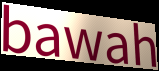
bawah